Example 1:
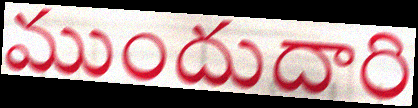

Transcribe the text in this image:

ముందుదారి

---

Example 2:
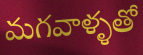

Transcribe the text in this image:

మగవాళ్ళతో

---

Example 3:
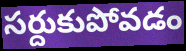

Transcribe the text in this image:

సర్దుకుపోవడం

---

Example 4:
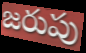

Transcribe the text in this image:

జరుపు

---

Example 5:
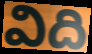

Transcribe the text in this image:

విది